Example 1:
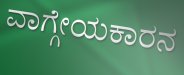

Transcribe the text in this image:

ವಾಗ್ಗೇಯಕಾರನ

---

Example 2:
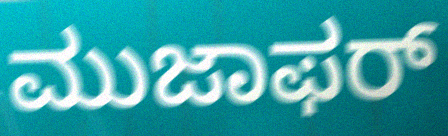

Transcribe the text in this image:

ಮುಜಾಫರ್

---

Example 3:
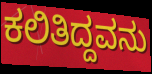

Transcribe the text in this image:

ಕಲಿತಿದ್ದವನು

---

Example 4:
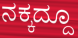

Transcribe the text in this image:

ನಕ್ಕದ್ದೂ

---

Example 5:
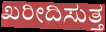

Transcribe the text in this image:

ಖರೀದಿಸುತ್ತ